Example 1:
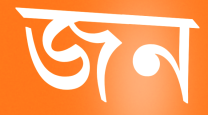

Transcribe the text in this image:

জন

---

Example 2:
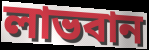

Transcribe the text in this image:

লাভবান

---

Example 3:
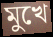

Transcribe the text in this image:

মুখে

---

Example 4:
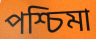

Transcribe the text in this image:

পশ্চিমা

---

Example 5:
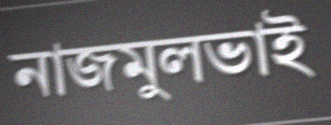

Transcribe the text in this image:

নাজমুলভাই